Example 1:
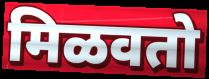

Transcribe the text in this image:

मिळवतो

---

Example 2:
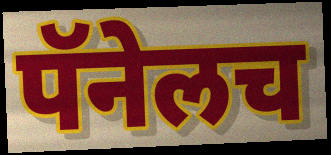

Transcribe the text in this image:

पॅनेलच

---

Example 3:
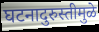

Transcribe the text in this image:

घटनादुरुस्तीमुळे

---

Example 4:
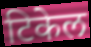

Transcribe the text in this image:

टिकेल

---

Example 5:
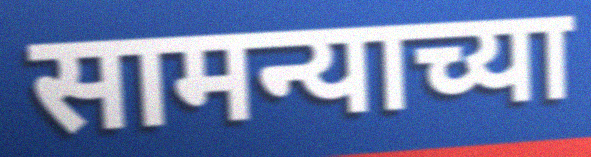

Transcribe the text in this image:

सामन्याच्या